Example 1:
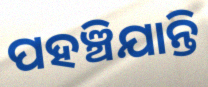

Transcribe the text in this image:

ପହଞ୍ଚିଯାନ୍ତି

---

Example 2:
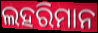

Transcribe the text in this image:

ଲହରିମାନ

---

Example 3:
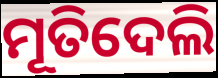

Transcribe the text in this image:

ମୂତିଦେଲି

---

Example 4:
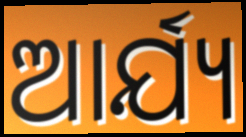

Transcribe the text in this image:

ଆର୍ଯ୍ୟ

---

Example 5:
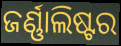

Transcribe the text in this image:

ଜର୍ଣ୍ଣାଲିଷ୍ଟର